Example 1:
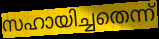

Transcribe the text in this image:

സഹായിച്ചതെന്ന്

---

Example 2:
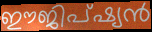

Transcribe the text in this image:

ഈജിപ്ഷ്യൻ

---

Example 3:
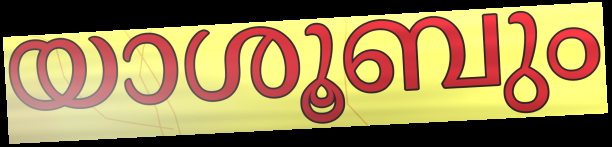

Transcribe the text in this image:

യാശൂബും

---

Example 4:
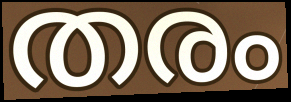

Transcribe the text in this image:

തരം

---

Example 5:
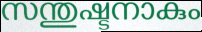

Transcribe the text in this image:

സന്തുഷ്ടനാകും